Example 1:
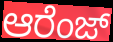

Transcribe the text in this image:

ಆರೆಂಜ್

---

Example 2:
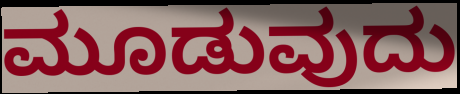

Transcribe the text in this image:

ಮೂಡುವುದು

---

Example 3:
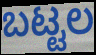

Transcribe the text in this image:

ಬಟ್ಟಲ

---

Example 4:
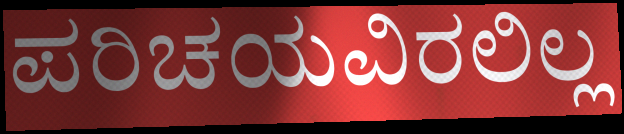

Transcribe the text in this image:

ಪರಿಚಯವಿರಲಿಲ್ಲ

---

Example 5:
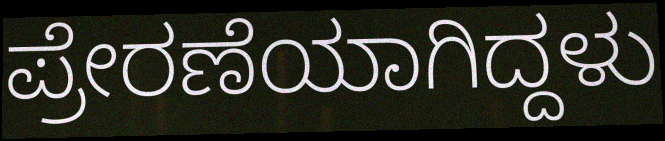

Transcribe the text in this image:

ಪ್ರೇರಣೆಯಾಗಿದ್ದಳು